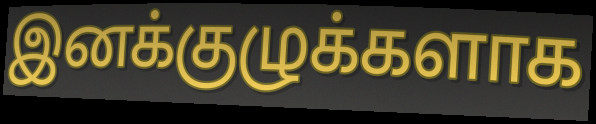
இனக்குழுக்களாக